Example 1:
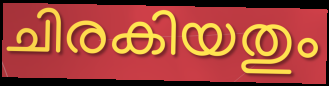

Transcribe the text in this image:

ചിരകിയതും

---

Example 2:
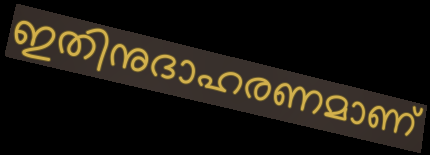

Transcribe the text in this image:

ഇതിനുദാഹരണമാണ്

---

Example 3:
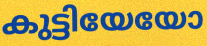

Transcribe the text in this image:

കുട്ടിയേയോ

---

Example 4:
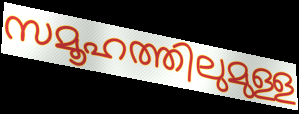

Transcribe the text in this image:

സമൂഹത്തിലുമുള്ള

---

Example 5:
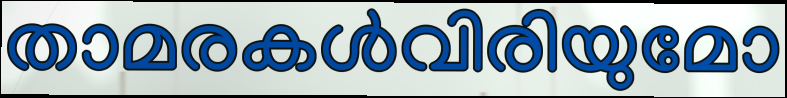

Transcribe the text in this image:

താമരകൾവിരിയുമോ